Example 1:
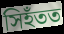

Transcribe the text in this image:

সিহঁতত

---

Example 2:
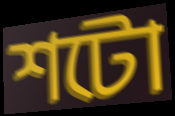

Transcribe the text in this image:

শটো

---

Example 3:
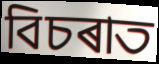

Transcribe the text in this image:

বিচৰাত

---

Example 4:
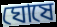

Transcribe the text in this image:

ঘোষে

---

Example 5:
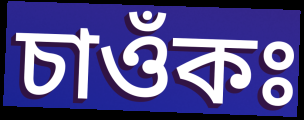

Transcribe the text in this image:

চাওঁকঃ